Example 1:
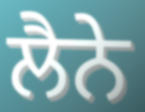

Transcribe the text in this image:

ਲੈਨੇ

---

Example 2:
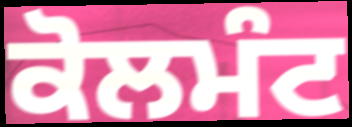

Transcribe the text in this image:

ਕੋਲਮੰਟ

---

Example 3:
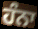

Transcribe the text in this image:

ਹੰਨਾ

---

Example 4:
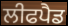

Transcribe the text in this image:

ਲੀਫਪੈਡ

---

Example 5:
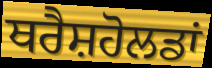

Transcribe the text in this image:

ਥਰੈਸ਼ਹੋਲਡਾਂ